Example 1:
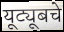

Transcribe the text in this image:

यूट्यूबचे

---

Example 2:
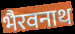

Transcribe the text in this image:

भैरवनाथ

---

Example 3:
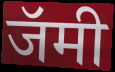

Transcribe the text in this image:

जॅमी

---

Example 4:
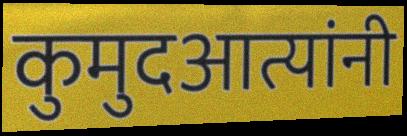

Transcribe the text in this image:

कुमुदआत्यांनी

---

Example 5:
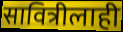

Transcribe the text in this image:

सावित्रीलाही